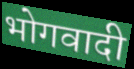
भोगवादी